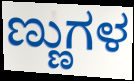
ಣ್ಣುಗಳ